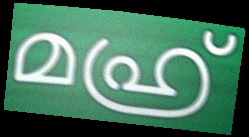
മഹ്ര്